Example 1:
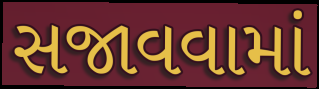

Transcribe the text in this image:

સજાવવામાં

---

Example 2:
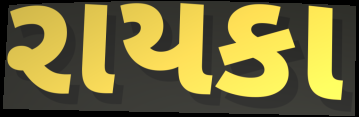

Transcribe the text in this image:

રાયકા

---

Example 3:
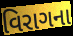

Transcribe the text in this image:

વિરાગના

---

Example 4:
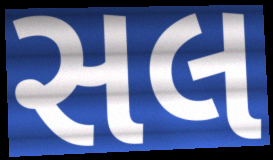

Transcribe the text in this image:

સલ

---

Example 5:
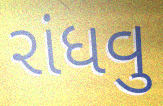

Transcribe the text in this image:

રાંધવુ